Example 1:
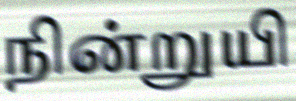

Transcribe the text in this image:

நின்றுயி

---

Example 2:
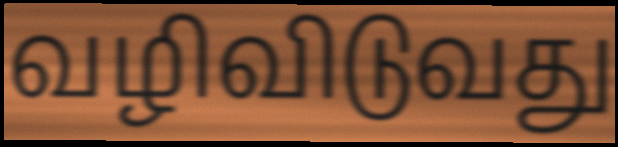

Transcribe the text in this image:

வழிவிடுவது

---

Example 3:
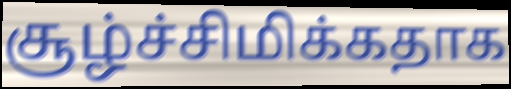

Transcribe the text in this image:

சூழ்ச்சிமிக்கதாக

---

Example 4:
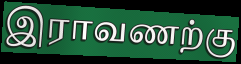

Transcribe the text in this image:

இராவணற்கு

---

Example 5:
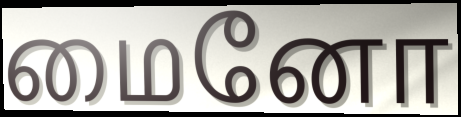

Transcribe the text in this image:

மைனோ